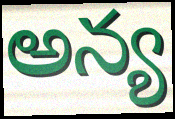
అన్య